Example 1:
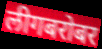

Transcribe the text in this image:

लीगबरोबर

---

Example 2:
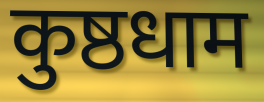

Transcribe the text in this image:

कुष्ठधाम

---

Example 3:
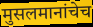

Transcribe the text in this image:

मुसलमानांचेच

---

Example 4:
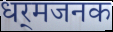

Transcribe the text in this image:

धर्मजनक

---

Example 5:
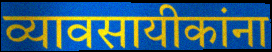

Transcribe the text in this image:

व्यावसायीकांना